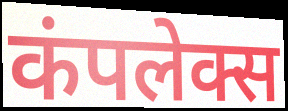
कंपलेक्स